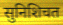
सुनिशिचत